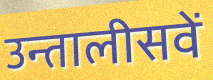
उन्तालीसवें